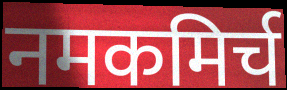
नमकमिर्च